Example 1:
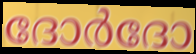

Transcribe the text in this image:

ദോർദോ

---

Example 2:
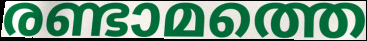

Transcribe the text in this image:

രണ്ടാമത്തെ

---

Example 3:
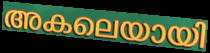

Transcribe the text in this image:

അകലെയായി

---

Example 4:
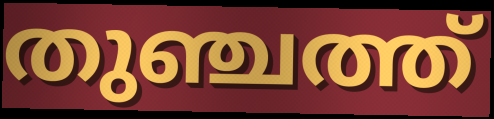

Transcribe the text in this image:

തുഞ്ചത്ത്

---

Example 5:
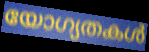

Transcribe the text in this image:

യോഗ്യതകൾ